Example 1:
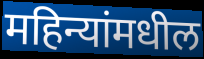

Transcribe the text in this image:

महिन्यांमधील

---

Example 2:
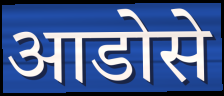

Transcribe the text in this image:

आडोसे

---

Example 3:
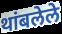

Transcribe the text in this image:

थांबलेले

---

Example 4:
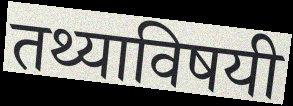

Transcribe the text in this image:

तथ्याविषयी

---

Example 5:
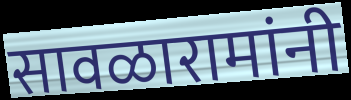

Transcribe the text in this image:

सावळारामांनी